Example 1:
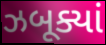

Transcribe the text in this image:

ઝબૂક્યાં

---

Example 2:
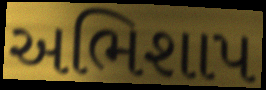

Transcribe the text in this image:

અભિશાપ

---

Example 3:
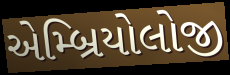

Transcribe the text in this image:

એમ્બ્રિયોલોજી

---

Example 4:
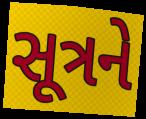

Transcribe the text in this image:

સૂત્રને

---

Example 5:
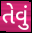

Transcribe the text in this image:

તેવું